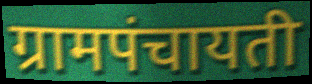
ग्रामपंचायती